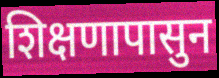
शिक्षणापासुन